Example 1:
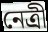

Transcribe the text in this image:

নেত্রী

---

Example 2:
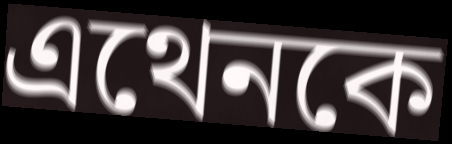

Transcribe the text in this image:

এথেনকে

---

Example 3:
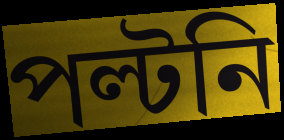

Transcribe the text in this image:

পল্টনি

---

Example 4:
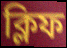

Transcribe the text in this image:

ক্লিফ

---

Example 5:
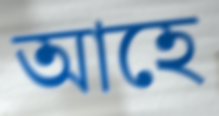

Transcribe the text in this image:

আহে